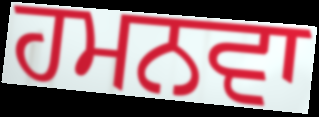
ਹਮਨਵਾ